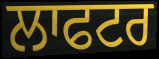
ਲਾਫਟਰ